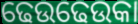
ଢେଉଢେଉକା